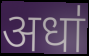
अधा॑